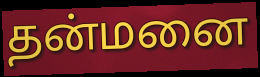
தன்மனை